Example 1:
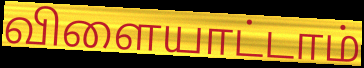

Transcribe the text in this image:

விளையாட்டாம்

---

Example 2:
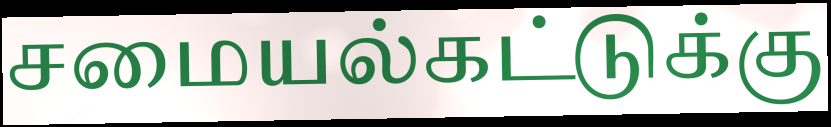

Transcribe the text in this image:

சமையல்கட்டுக்கு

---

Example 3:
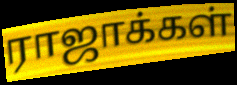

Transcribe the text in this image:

ராஜாக்கள்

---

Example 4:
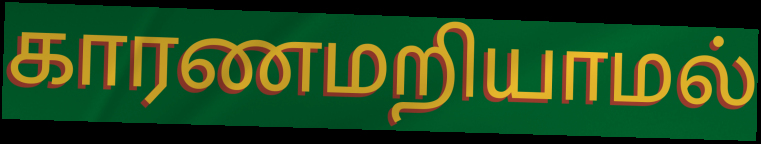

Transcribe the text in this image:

காரணமறியாமல்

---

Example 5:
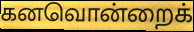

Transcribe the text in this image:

கனவொன்றைக்